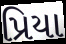
પ્રિયા